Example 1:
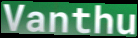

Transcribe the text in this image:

Vanthu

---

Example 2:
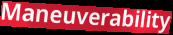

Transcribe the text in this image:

Maneuverability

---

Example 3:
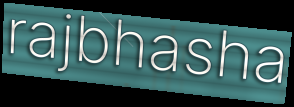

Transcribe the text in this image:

rajbhasha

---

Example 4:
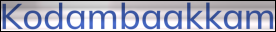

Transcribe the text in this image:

Kodambaakkam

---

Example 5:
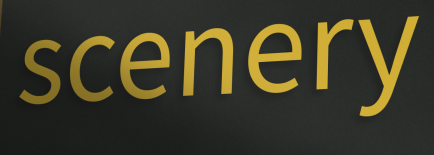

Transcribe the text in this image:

scenery